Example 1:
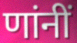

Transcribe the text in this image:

णांनीं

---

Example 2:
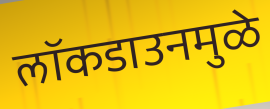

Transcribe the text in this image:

लॉकडाउनमुळे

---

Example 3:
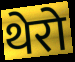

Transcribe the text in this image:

थेरो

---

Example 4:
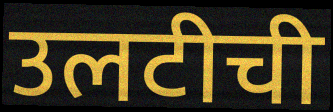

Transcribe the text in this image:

उलटीची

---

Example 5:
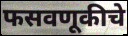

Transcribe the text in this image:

फसवणूकीचे